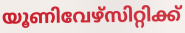
യൂണിവേഴ്സിറ്റിക്ക്